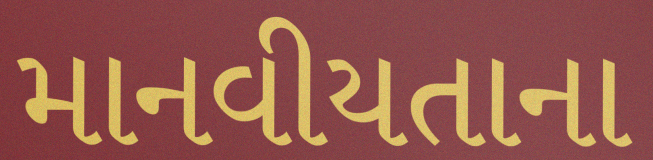
માનવીયતાના